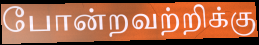
போன்றவற்றிக்கு